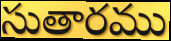
సుతారము